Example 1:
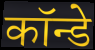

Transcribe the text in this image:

कॉन्डे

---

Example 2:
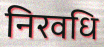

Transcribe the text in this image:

निरवधि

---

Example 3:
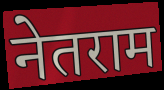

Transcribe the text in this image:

नेतराम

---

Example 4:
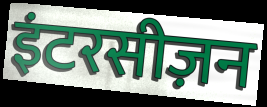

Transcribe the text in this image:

इंटरसीज़न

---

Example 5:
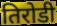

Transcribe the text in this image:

तिरोडी